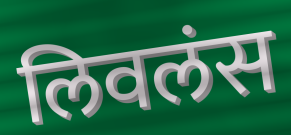
लिवलंस